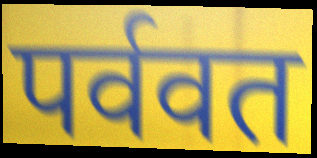
पर्ववत